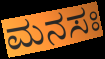
ಮನಸಃ